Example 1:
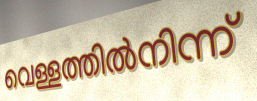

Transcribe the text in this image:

വെള്ളത്തിൽനിന്ന്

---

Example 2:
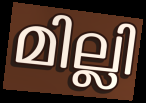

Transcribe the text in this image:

മില്ലി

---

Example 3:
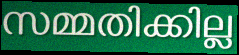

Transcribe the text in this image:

സമ്മതിക്കില്ല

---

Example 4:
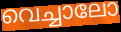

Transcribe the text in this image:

വെച്ചാലോ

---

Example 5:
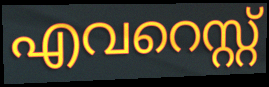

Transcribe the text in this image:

എവറെസ്റ്റ്